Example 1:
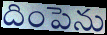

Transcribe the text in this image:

దింపెను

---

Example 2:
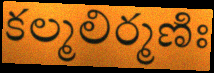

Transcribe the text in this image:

కల్మలిర్మణిః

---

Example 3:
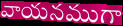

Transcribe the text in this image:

వాయనముగా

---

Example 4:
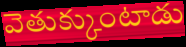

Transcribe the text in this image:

వెతుక్కుంటాడు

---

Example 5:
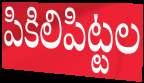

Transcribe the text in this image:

పికిలిపిట్టల